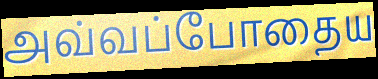
அவ்வப்போதைய